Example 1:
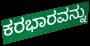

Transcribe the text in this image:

ಕರಭಾರವನ್ನು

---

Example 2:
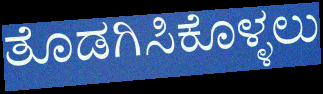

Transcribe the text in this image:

ತೊಡಗಿಸಿಕೊಳ್ಳಲು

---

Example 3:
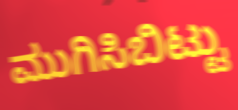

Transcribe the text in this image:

ಮುಗಿಸಿಬಿಟ್ಟು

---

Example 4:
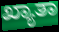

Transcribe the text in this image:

ಖ್ಯಾತಾ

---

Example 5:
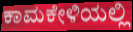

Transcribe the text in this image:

ಕಾಮಕೇಳಿಯಲ್ಲಿ